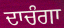
ਦਾਚੰਗਾ